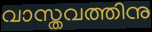
വാസ്തവത്തിനു